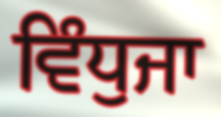
ਵਿੰਧੁਜਾ